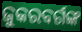
ଜୁକରବର୍ଗଙ୍କ